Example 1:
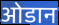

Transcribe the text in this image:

ओडान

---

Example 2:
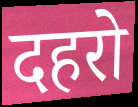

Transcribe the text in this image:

दहरो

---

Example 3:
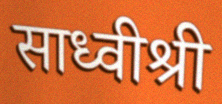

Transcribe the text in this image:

साध्वीश्री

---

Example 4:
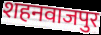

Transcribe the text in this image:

शहनवाजपुर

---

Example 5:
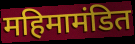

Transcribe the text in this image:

महिमामंडित